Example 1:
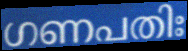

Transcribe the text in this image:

ഗണപതിഃ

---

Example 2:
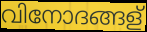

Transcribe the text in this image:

വിനോദങ്ങള്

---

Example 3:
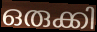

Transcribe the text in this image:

ഒരുക്കി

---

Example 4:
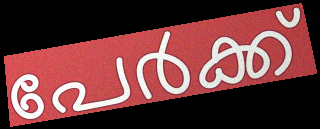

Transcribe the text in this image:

പേർക്ക്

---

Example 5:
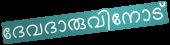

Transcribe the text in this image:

ദേവദാരുവിനോട്